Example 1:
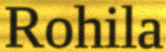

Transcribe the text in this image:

Rohila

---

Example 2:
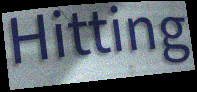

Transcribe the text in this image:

Hitting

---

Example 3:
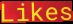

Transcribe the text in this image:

Likes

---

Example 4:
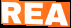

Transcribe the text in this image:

REA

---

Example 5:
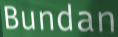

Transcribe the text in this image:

Bundan